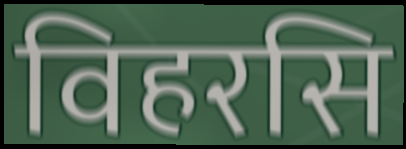
विहरसि